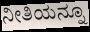
ನೀತಿಯನ್ನೂ